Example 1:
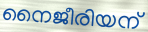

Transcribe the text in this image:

നൈജീരിയന്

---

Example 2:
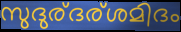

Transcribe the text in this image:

സുദുര്ദര്ശമിദം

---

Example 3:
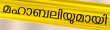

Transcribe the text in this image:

മഹാബലിയുമായി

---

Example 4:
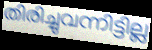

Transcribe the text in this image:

തിരിച്ചുവന്നിട്ടില്ല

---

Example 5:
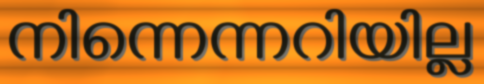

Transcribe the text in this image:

നിന്നെന്നറിയില്ല